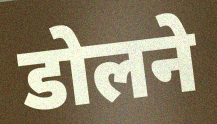
डोलने